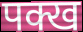
पक्ख